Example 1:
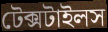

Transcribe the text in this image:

টেক্সটাইলস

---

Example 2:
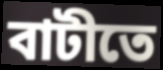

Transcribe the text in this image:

বাটীতে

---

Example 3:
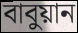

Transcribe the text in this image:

বাবুয়ান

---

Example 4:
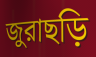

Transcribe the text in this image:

জুরাছড়ি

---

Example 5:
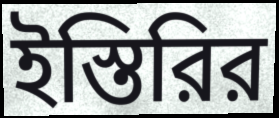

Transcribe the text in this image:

ইস্তিরির